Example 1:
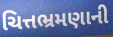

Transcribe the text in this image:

ચિત્તભ્રમણાની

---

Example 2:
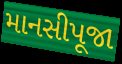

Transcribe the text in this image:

માનસીપૂજા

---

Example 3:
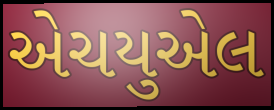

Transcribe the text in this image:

એચયુએલ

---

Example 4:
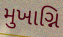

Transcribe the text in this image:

મુખાગ્નિ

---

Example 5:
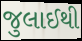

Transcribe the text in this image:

જુલાઈથી